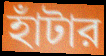
হাঁটার